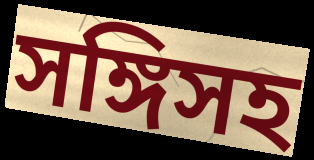
সঙ্গিসহ